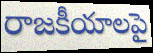
రాజకీయాలపై